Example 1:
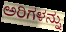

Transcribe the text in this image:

ಅರಿಗಳನ್ನು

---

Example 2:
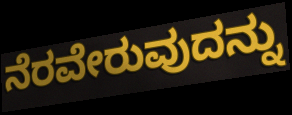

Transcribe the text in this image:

ನೆರವೇರುವುದನ್ನು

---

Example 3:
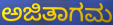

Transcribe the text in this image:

ಅಜಿತಾಗಮ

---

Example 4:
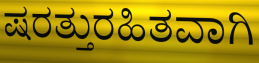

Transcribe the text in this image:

ಷರತ್ತುರಹಿತವಾಗಿ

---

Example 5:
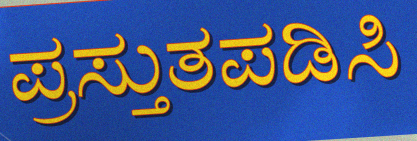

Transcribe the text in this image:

ಪ್ರಸ್ತುತಪಡಿಸಿ